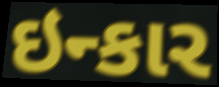
ઇન્કાર